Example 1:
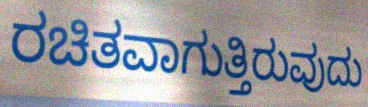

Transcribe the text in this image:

ರಚಿತವಾಗುತ್ತಿರುವುದು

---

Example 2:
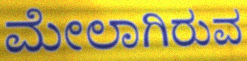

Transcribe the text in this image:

ಮೇಲಾಗಿರುವ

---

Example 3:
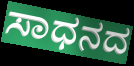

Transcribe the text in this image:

ಸಾಧನದ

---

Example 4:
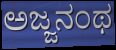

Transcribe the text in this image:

ಅಜ್ಜನಂಥ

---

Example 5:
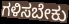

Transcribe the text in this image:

ಗಳಿಸಬೇಕು